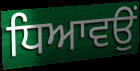
ਧਿਆਵਉਂ